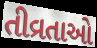
તીવ્રતાઓ